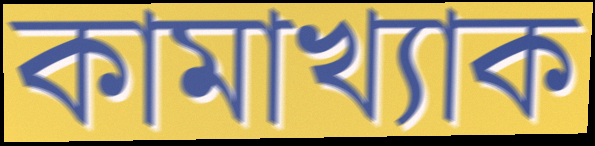
কামাখ্যাক